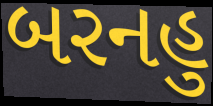
બરનહુ